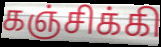
கஞ்சிக்கி